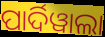
ପାର୍ଦିୱାଲା